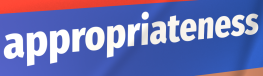
appropriateness